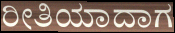
ರೀತಿಯಾದಾಗ